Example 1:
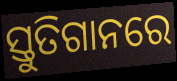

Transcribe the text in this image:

ସ୍ତୁତିଗାନରେ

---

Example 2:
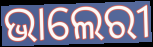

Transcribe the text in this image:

ଭାଲେରୀ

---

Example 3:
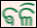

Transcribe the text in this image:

ଵଳି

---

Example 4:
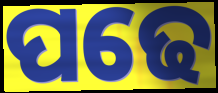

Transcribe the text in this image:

ପଢେ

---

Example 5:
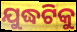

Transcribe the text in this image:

ଯୁଦ୍ଧଟିକୁ